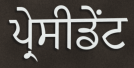
ਪ੍ਰੇਸੀਡੇਂਟ